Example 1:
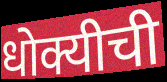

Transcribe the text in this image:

धोक्यीची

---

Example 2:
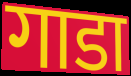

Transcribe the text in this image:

गाडा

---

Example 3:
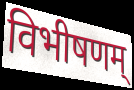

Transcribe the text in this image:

विभीषणम्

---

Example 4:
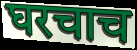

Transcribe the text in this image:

घरचाच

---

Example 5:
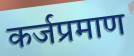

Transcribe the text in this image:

कर्जप्रमाण